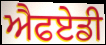
ਐਫਏਡੀ